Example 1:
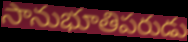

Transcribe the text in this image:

సానుభూతిపరుడు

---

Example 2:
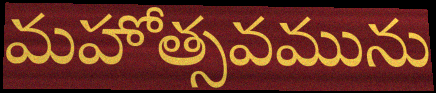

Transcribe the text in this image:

మహోత్సవమును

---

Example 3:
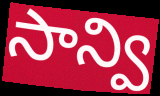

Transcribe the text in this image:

సాన్వి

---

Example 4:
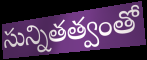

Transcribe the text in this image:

సున్నితత్వంతో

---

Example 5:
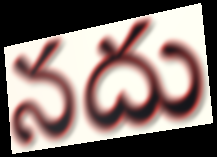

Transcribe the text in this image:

నదు